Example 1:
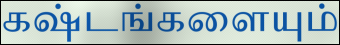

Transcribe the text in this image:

கஷ்டங்களையும்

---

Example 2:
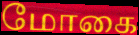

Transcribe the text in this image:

மோகை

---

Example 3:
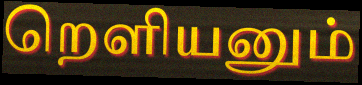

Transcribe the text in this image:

றெளியனும்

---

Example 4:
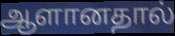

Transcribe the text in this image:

ஆளானதால்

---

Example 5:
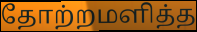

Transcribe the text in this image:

தோற்றமளித்த